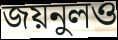
জয়নুলও